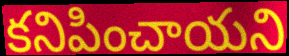
కనిపించాయని